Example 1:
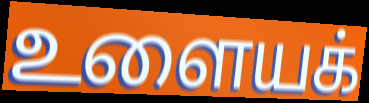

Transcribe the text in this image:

உளையக்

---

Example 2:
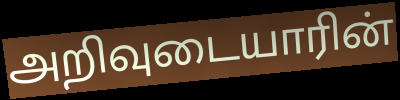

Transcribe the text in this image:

அறிவுடையாரின்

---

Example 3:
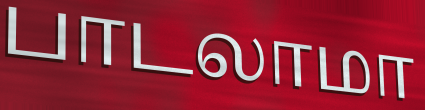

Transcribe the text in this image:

பாடலாமா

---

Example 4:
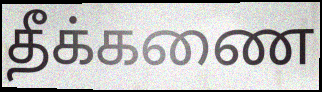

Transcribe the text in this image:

தீக்கணை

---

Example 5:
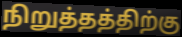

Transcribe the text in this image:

நிறுத்தத்திற்கு